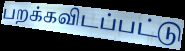
பறக்கவிடப்பட்டு